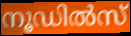
നൂഡിൽസ്